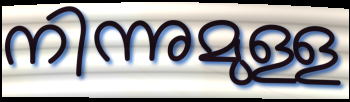
നിന്നുമുള്ള